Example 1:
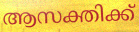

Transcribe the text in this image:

ആസക്തിക്ക്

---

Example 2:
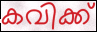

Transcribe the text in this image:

കവിക്ക്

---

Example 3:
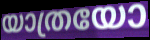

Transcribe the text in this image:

യാത്രയോ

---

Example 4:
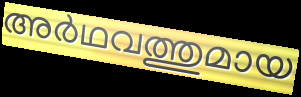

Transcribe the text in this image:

അർഥവത്തുമായ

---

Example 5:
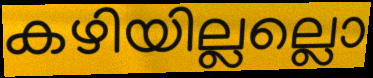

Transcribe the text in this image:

കഴിയില്ലല്ലൊ